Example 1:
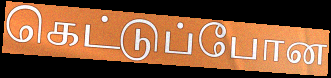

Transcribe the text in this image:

கெட்டுப்போன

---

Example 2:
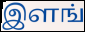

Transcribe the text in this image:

இளங்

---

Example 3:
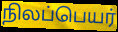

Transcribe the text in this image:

நிலப்பெயர்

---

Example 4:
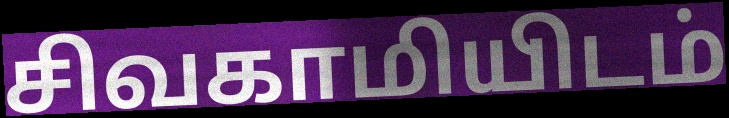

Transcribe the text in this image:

சிவகாமியிடம்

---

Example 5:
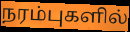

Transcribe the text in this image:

நரம்புகளில்